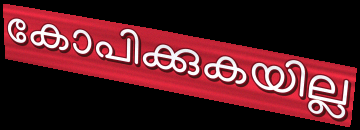
കോപിക്കുകയില്ല